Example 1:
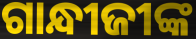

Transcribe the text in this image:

ଗାନ୍ଧୀଜୀଙ୍କ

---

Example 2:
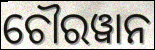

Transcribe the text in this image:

ଚୌରୱାନ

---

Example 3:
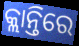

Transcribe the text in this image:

କ୍ଲାନ୍ତିରେ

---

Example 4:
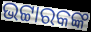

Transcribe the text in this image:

ଭଟ୍ଟାରକଙ୍କ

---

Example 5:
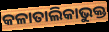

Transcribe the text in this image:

କଳାତାଲିକାଭୁକ୍ତ